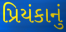
પ્રિયંકાનું